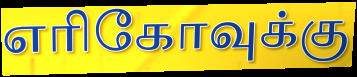
எரிகோவுக்கு